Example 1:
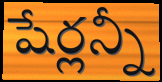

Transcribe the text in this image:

షేర్లన్నీ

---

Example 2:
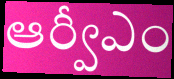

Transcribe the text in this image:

ఆర్వీఎం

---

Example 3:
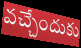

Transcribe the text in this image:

వచ్చేందుకు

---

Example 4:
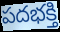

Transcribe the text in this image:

పదభక్తి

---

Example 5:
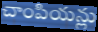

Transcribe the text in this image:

చాంపియన్లు